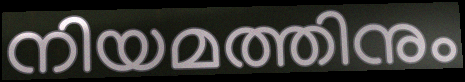
നിയമത്തിനും